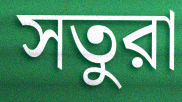
সতুরা